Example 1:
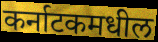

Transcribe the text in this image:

कर्नाटकमधील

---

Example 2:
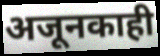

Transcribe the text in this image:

अजूनकाही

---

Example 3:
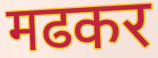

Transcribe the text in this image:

मढकर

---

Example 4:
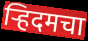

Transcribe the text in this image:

ऱ्हिदमचा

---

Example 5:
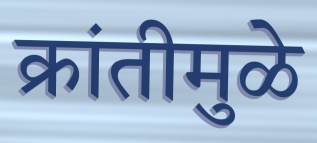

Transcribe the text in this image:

क्रांतीमुळे